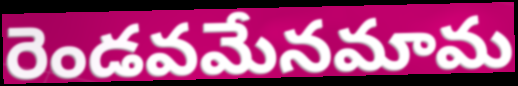
రెండవమేనమామ